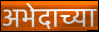
अभेदाच्या